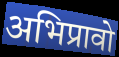
अभिप्रावो